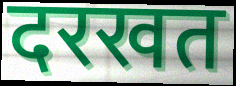
दरखत